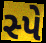
સ્પે